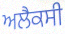
ਅਲੈਕਸੀ